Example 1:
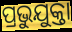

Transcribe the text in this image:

ପ୍ରଭୁଯୁକ୍ତା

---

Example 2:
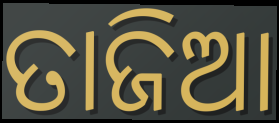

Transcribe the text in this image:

ତାଜିଆ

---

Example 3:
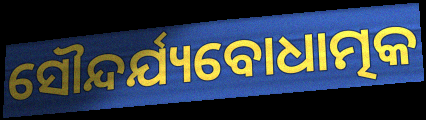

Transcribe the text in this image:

ସୌନ୍ଦର୍ଯ୍ୟବୋଧାତ୍ମକ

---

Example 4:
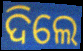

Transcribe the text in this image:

ଦିଲେ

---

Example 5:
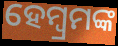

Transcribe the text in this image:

ହେମ୍ବ୍ରମଙ୍କ